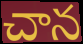
చాన